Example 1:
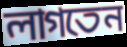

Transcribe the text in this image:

লাগতেন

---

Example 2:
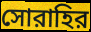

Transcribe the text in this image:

সোরাহির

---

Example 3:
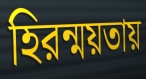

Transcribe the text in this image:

হিরন্ময়তায়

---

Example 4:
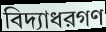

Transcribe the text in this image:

বিদ্যাধরগণ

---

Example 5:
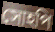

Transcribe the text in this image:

সোহপি